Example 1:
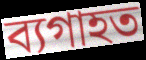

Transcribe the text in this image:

ব্যগাহত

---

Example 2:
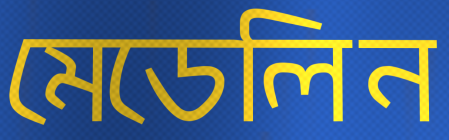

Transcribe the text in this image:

মেডেলিন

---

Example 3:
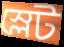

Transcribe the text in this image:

স্লেট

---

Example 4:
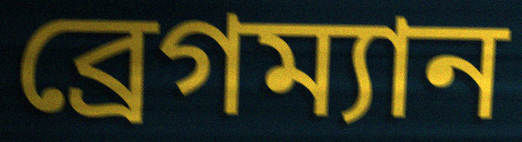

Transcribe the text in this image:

ব্রেগম্যান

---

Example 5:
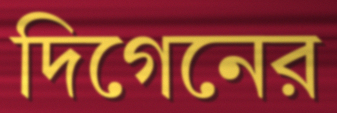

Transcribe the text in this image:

দিগেনের